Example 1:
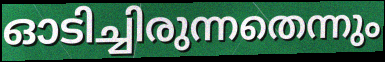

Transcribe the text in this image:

ഓടിച്ചിരുന്നതെന്നും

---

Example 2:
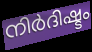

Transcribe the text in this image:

നിർദിഷ്ടം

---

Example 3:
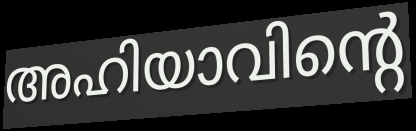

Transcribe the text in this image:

അഹിയാവിന്റെ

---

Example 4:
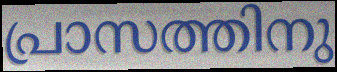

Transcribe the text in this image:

പ്രാസത്തിനു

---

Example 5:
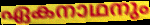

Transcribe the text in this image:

ഏകനാഥനും